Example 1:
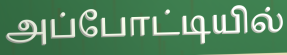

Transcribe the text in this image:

அப்போட்டியில்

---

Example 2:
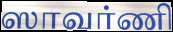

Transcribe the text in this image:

ஸாவர்ணி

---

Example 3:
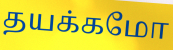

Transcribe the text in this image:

தயக்கமோ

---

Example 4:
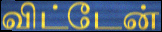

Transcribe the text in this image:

விட்டேன்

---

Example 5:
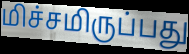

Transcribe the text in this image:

மிச்சமிருப்பது